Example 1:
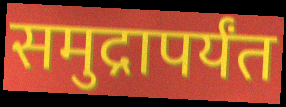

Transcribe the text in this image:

समुद्रापर्यंत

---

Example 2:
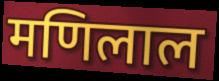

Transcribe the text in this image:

मणिलाल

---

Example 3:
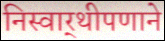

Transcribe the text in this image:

निस्वार्थीपणाने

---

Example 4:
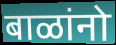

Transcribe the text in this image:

बाळांनो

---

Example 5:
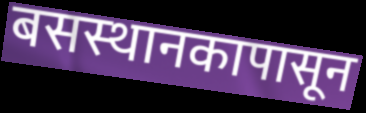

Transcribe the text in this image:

बसस्थानकापासून